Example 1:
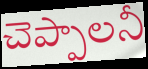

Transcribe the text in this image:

చెప్పాలనీ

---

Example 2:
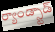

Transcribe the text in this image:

ర్యాండ్స్టాడ్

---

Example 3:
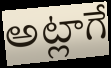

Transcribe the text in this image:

అట్లాగే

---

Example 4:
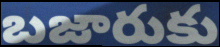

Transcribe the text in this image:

బజారుకు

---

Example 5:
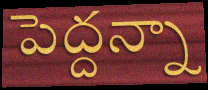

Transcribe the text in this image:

పెద్దన్నా